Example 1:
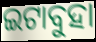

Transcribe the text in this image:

ଇଟାବୁହା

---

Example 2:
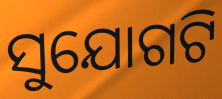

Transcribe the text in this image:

ସୁଯୋଗଟି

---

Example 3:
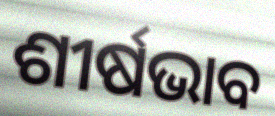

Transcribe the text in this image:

ଶୀର୍ଷଭାବ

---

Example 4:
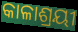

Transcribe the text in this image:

କାଳାଶ୍ରୟୀ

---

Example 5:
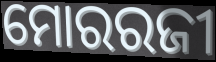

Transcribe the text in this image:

ମୋରରଜୀ